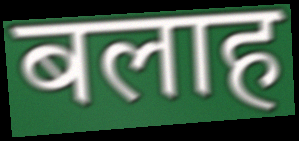
बलाह